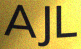
AJL